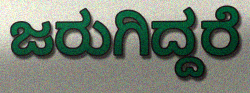
ಜರುಗಿದ್ದರೆ